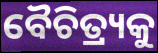
ବୈଚିତ୍ର୍ୟକୁ